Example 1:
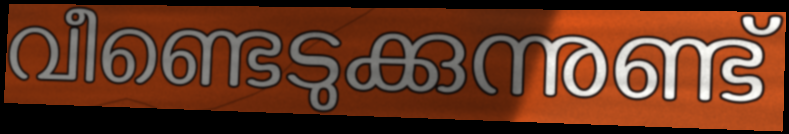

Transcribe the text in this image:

വീണ്ടെടുക്കുന്നുണ്ട്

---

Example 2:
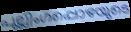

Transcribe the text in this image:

പുല്ലിംഗപ്പൊഴയുടെ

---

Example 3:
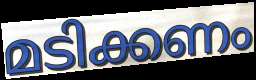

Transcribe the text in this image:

മടിക്കണം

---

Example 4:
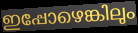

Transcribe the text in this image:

ഇപ്പോഴെങ്കിലും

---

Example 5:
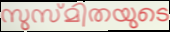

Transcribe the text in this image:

സുസ്മിതയുടെ